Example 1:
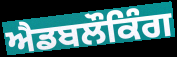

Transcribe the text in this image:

ਐਡਬਲੌਕਿੰਗ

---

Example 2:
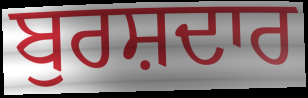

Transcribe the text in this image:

ਬੁਰਸ਼ਦਾਰ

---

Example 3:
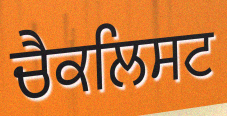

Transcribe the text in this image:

ਚੈਕਲਿਸਟ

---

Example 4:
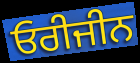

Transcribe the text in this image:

ਓਰੀਜੀਨ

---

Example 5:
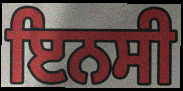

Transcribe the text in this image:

ਇਨਸੀ